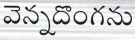
వెన్నదొంగను